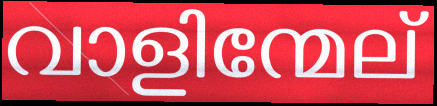
വാളിന്മേല്